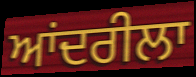
ਆਂਦਰੀਲਾ